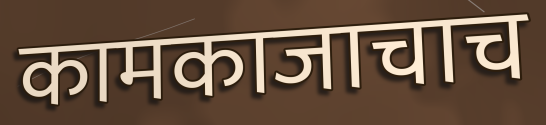
कामकाजाचाच